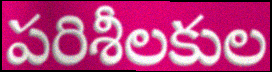
పరిశీలకుల